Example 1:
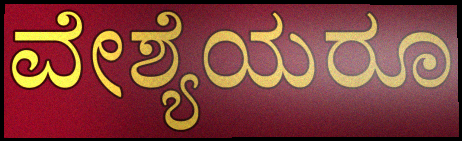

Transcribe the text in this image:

ವೇಶ್ಯೆಯರೂ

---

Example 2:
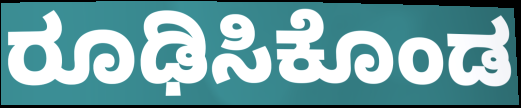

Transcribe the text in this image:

ರೂಢಿಸಿಕೊಂಡ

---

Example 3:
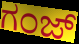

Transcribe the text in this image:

ಗಂಜ್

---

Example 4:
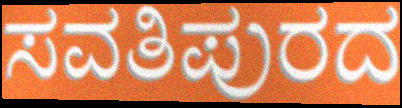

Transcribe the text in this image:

ಸವತಿಪುರದ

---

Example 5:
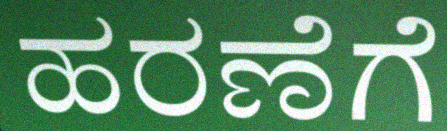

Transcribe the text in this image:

ಹರಣೆಗೆ